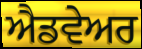
ਐਡਵੇਅਰ